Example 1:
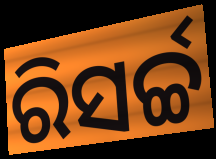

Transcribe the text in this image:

ରିସର୍ଚ୍ଚ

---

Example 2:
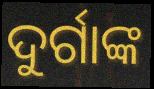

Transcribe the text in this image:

ଦୁର୍ଗାଙ୍କ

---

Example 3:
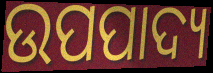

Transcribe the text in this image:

ଉପପାଦ୍ୟ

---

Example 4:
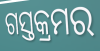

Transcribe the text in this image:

ଗସ୍ତକ୍ରମର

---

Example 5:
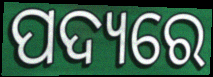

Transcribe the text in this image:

ପଦ୍ୟରେ